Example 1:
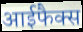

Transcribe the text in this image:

आईफैक्स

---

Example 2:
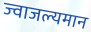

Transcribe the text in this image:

ज्वाजल्यमान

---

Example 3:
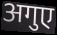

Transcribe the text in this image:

अगुए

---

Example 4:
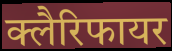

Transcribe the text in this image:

क्लैरिफायर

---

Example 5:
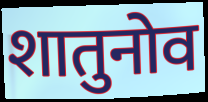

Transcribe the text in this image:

शातुनोव